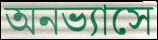
অনভ্যাসে